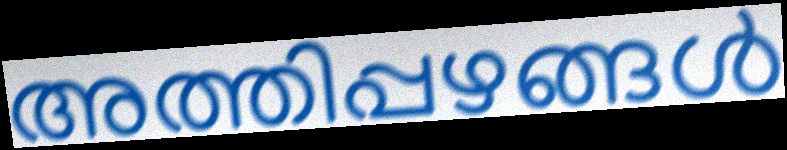
അത്തിപ്പഴങ്ങൾ